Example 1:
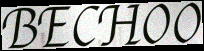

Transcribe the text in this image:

BECHOO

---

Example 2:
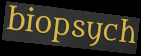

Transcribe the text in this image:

biopsych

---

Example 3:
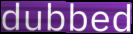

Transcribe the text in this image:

dubbed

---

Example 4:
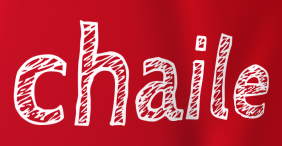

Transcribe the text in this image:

chaile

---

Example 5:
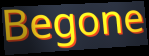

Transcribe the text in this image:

Begone